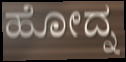
ಹೋದ್ನ